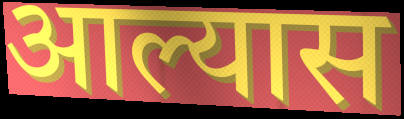
आल्यास